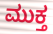
ಮುಕ್ತ